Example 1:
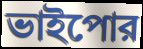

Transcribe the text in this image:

ভাইপোর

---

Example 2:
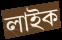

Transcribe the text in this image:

লাইক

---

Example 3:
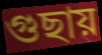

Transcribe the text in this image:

গুছায়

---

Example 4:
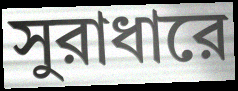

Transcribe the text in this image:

সুরাধারে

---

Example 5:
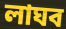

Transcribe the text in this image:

লাঘব